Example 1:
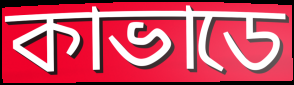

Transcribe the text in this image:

কাভাডে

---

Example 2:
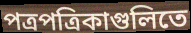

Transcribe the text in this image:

পত্রপত্রিকাগুলিতে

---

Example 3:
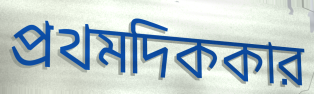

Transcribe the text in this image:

প্রথমদিককার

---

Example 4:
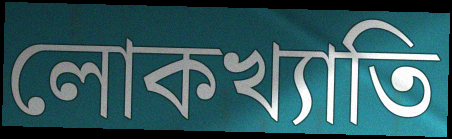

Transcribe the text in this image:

লোকখ্যাতি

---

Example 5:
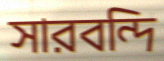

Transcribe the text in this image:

সারবন্দি